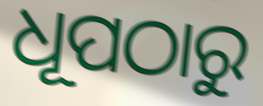
ଧୂପଠାରୁ